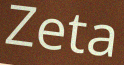
Zeta